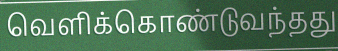
வெளிக்கொண்டுவந்தது